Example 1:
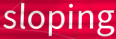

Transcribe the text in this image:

sloping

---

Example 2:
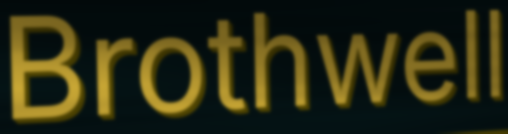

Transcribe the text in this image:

Brothwell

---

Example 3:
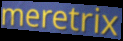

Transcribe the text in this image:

meretrix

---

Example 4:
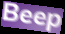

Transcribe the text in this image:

Beep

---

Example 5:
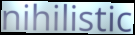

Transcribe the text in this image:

nihilistic